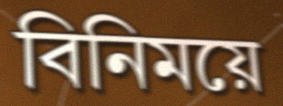
বিনিময়ে